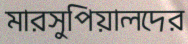
মারসুপিয়ালদের